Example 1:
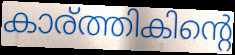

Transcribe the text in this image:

കാര്ത്തികിന്റെ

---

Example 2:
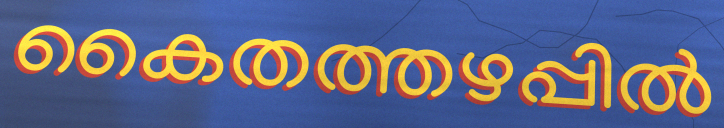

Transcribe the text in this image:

കൈതത്തഴപ്പിൽ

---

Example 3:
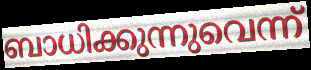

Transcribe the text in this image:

ബാധിക്കുന്നുവെന്ന്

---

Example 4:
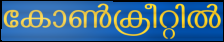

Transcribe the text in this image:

കോൺക്രീറ്റിൽ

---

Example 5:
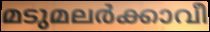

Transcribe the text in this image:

മടുമലർക്കാവീ